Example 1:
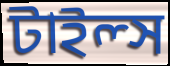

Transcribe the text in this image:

টাইল্স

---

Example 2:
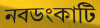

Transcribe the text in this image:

নবডংকাটি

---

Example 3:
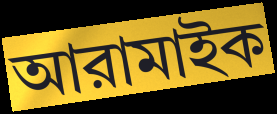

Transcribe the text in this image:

আরামাইক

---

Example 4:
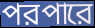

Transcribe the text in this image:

পরপারে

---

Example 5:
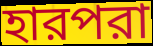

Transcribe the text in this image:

হারপরা